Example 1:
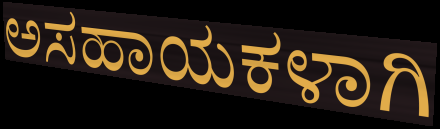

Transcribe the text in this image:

ಅಸಹಾಯಕಳಾಗಿ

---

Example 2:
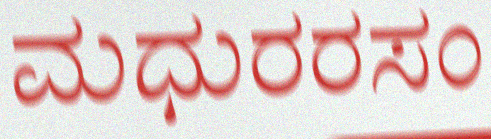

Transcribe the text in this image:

ಮಧುರರಸಂ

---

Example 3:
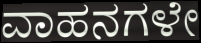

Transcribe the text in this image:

ವಾಹನಗಳೇ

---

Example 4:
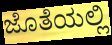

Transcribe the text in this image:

ಜೊತೆಯಲ್ಲಿ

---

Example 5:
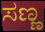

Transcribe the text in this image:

ಸಣ್ಣ